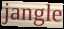
jangle